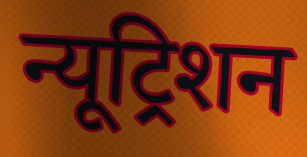
न्यूट्रिशन